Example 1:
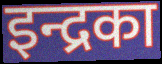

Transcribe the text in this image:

इन्द्रका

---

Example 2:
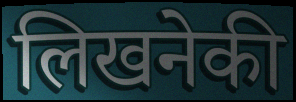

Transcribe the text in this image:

लिखनेकी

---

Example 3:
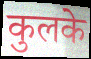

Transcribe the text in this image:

कुलके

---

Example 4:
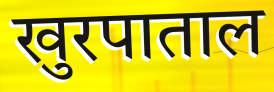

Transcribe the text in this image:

खुरपाताल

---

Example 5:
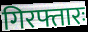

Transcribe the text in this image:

गिरफ्तारः